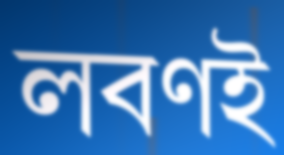
লবণই